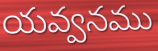
యవ్వనము